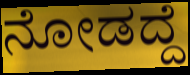
ನೋಡದ್ದೆ